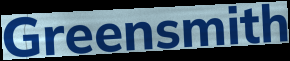
Greensmith